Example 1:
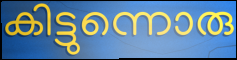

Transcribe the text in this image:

കിട്ടുന്നൊരു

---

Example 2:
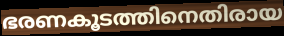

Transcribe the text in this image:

ഭരണകൂടത്തിനെതിരായ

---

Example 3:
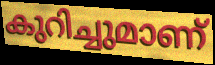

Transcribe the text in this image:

കുറിച്ചുമാണ്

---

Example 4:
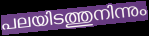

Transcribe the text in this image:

പലയിടത്തുനിന്നും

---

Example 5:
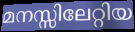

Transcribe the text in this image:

മനസ്സിലേറ്റിയ